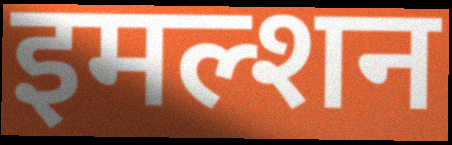
इमल्शन